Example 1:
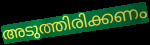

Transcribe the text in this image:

അടുത്തിരിക്കണം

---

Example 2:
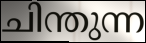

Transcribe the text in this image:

ചിന്തുന്ന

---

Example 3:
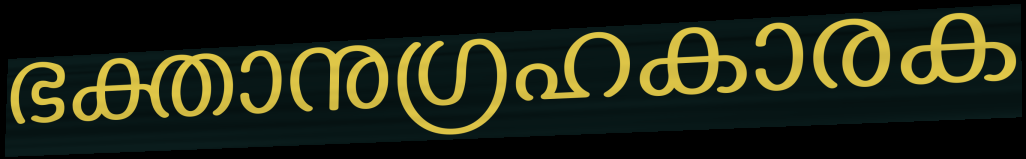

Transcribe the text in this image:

ഭക്താനുഗ്രഹകാരക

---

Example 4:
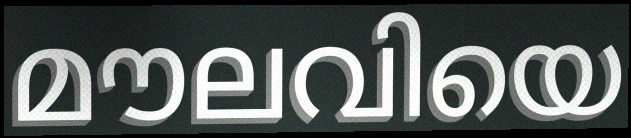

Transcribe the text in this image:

മൗലവിയെ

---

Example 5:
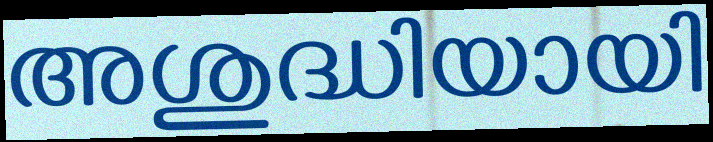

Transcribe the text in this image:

അശുദ്ധിയായി